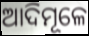
ଆଦିମୂଳେ